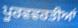
ਪੂਰਵਵਰਤੀਆਂ